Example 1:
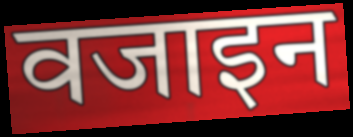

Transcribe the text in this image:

वजाइन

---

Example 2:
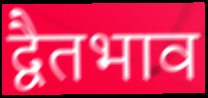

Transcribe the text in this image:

द्वैतभाव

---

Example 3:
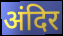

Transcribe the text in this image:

अंदिर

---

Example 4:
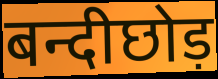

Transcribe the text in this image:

बन्दीछोड़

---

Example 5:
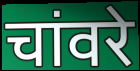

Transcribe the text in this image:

चांवरे